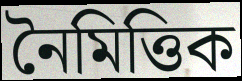
নৈমিত্তিক